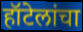
हॉटेलांचा